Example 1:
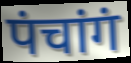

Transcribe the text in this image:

पंचांगं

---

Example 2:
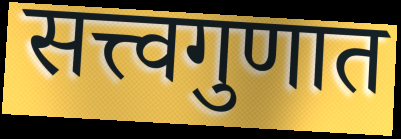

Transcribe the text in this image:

सत्त्वगुणात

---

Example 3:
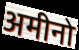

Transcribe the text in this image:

अमीनो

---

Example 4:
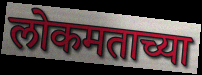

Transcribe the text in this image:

लोकमताच्या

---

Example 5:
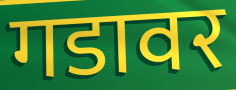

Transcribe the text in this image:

गडावर